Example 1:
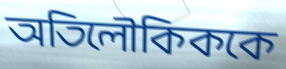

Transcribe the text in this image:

অতিলৌকিককে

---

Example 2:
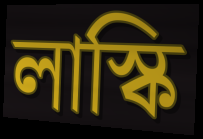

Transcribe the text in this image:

লাস্কি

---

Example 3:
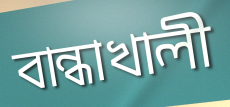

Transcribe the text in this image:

বান্ধাখালী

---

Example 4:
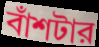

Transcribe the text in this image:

বাঁশটার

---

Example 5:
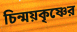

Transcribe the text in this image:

চিন্ময়কৃষ্ণের